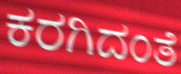
ಕರಗಿದಂತೆ